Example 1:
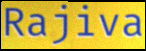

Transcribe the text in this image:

Rajiva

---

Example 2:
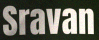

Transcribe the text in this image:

Sravan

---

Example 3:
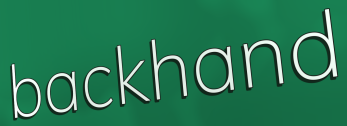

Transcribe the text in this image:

backhand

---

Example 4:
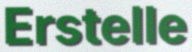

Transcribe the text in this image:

Erstelle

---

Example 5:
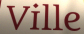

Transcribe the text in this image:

Ville